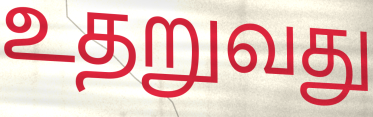
உதறுவது